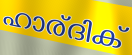
ഹാര്ദിക്